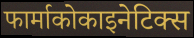
फार्माकोकाइनेटिक्स